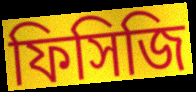
ফিসিজি